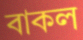
বাকল